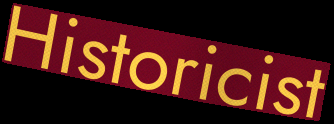
Historicist